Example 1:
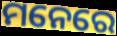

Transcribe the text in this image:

ମନେରେ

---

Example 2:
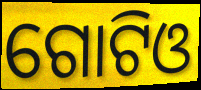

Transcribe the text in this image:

ଗୋଟିଓ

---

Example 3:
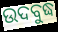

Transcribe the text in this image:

ଉଦବୁଦ୍ଧ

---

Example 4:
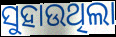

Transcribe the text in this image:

ସୁହାଉଥିଲା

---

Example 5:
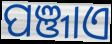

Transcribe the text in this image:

ପଞ୍ଜାଏ